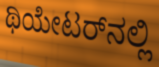
ಥಿಯೇಟರ್‌ನಲ್ಲಿ